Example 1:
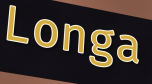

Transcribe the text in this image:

Longa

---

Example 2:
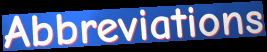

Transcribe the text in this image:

Abbreviations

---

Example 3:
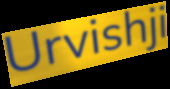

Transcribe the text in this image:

Urvishji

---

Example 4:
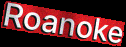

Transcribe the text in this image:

Roanoke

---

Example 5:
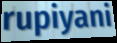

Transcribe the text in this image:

rupiyani